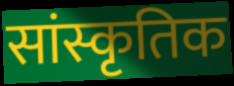
सांस्‍कृतिक